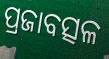
ପ୍ରଜାବତ୍ସଳ